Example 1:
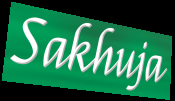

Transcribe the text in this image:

Sakhuja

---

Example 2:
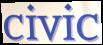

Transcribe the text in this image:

civic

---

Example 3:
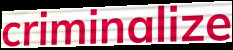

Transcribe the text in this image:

criminalize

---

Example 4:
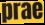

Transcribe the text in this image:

prae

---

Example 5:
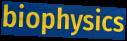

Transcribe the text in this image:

biophysics